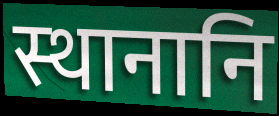
स्थानानि